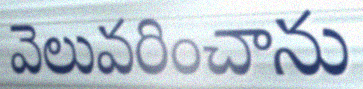
వెలువరించాను